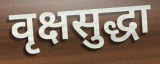
वृक्षसुद्धा